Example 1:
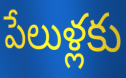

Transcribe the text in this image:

పేలుళ్లకు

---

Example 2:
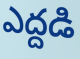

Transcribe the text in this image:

ఎద్దడి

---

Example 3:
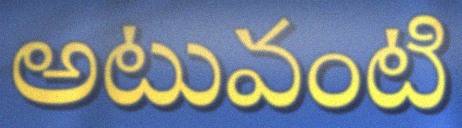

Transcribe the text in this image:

అటువంటి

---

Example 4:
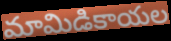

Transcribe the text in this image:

మామిడికాయల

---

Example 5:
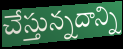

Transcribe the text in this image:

చేస్తున్నదాన్ని